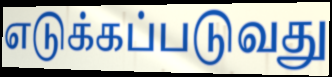
எடுக்கப்படுவது